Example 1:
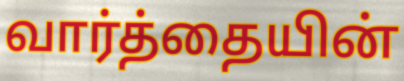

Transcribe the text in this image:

வார்த்தையின்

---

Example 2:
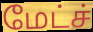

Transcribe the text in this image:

மேட்ச்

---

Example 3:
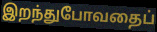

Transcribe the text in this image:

இறந்துபோவதைப்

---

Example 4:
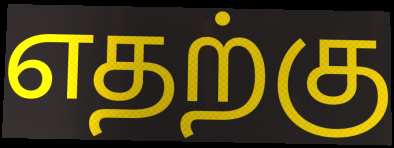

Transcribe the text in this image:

எதற்கு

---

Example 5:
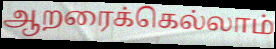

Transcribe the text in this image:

ஆறரைக்கெல்லாம்